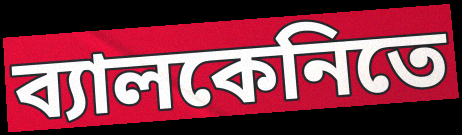
ব্যালকেনিতে